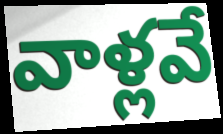
వాళ్లవే